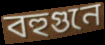
বহুগুনে